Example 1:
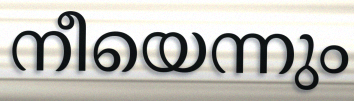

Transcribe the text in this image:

നീയെന്നും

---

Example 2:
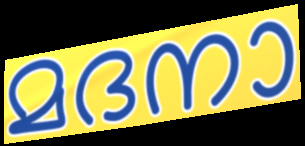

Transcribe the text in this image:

മദനാ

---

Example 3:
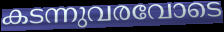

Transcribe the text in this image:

കടന്നുവരവോടെ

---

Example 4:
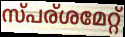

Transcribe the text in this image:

സ്പര്ശമേറ്റ്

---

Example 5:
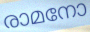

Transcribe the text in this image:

രാമനോ